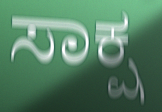
ಸಾಕ್ಷ